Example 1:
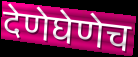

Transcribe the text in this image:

देणेघेणेच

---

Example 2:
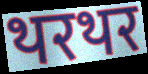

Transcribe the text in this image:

थरथर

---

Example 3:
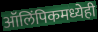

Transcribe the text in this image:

ऑलिंपिकमध्येही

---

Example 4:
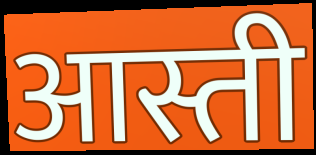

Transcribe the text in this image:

आस्ती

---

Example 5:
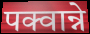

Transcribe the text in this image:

पक्वान्ने